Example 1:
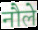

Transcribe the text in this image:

नौले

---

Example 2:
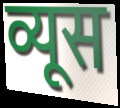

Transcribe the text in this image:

व्यूस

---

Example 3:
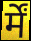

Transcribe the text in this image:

र्में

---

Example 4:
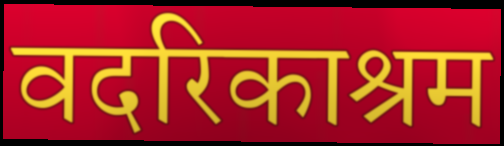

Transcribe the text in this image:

वदरिकाश्रम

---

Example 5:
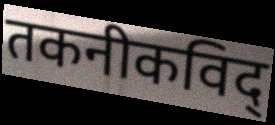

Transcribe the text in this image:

तकनीकविद्